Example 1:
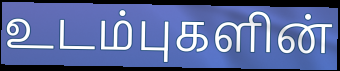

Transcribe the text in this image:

உடம்புகளின்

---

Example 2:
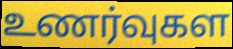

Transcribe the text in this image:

உணர்வுகள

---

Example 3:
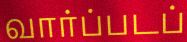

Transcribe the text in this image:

வார்ப்படப்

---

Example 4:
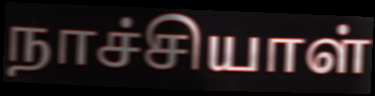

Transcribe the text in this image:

நாச்சியாள்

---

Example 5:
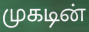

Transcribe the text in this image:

முகடின்